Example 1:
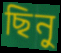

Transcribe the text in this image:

ছিনু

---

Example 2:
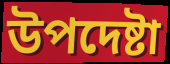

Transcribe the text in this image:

উপদেষ্টা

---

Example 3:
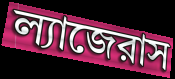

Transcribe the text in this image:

ল্যাজেরাস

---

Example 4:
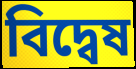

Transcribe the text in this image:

বিদ্বেষ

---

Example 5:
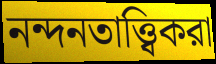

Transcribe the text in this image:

নন্দনতাত্ত্বিকরা